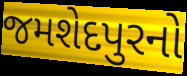
જમશેદપુરનો